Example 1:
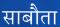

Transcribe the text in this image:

साबौता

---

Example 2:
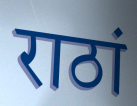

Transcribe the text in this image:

राठां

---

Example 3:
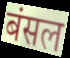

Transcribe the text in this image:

बंसल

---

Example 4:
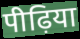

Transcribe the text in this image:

पीढ़िया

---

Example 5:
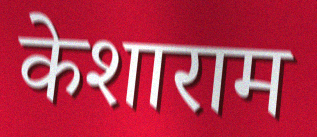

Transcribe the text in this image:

केशाराम